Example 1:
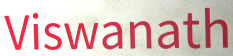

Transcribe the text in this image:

Viswanath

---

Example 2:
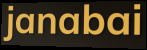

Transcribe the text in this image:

janabai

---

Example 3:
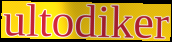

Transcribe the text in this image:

ultodiker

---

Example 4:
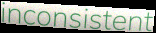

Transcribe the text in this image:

inconsistent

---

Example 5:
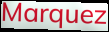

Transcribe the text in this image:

Marquez